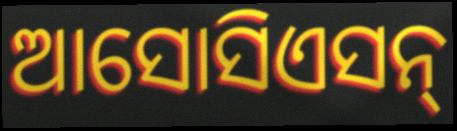
ଆସୋସିଏସନ୍